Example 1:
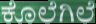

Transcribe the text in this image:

ಕೊಲೆಗಿಲೆ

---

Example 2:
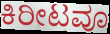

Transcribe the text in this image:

ಕಿರೀಟವೂ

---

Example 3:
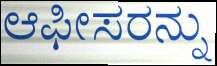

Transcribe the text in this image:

ಆಫೀಸರನ್ನು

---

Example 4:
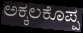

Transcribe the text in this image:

ಅಕ್ಕಲಕೊಪ್ಪ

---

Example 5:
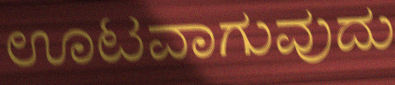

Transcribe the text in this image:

ಊಟವಾಗುವುದು